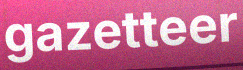
gazetteer